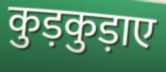
कुड़कुड़ाए